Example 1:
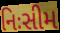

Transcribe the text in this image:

નિઃસીમ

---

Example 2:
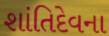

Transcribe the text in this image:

શાંતિદેવના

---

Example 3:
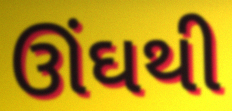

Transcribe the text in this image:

ઊંઘથી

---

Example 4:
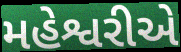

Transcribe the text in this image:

મહેશ્વરીએ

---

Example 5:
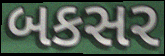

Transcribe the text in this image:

બકસર